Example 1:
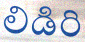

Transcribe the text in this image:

లిడిరి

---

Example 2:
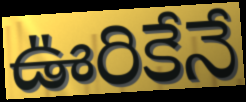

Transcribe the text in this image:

ఊరికేనే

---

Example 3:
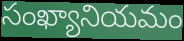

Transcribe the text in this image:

సంఖ్యానియమం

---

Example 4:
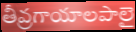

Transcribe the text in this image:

తీవ్రగాయాలపాలై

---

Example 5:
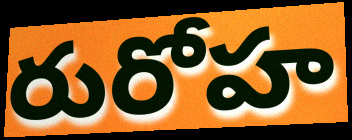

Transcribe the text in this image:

రురోహ